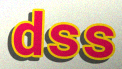
dss